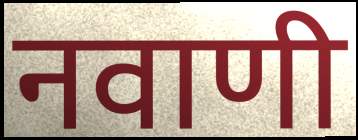
नवाणी